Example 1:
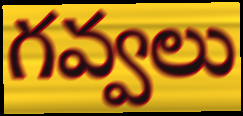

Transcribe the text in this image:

గవ్వలు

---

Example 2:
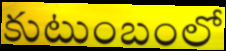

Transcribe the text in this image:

కుటుంబంలో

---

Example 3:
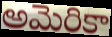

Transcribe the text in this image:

అమెరికా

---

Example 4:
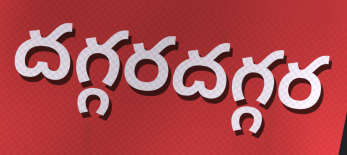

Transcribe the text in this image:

దగ్గరదగ్గర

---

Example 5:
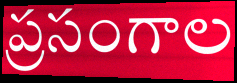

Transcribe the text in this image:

ప్రసంగాల